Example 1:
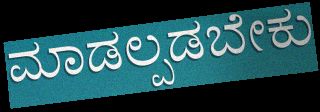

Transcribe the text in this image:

ಮಾಡಲ್ಪಡಬೇಕು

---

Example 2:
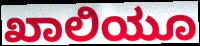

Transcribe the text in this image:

ಖಾಲಿಯೂ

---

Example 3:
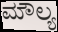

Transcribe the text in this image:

ಮೌಲ್ಯ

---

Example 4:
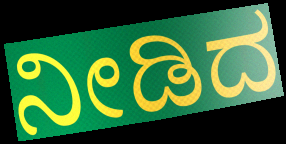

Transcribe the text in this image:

ನೀಡಿದ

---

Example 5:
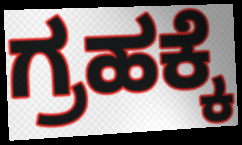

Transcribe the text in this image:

ಗ್ರಹಕ್ಕೆ